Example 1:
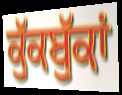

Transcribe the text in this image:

ਕੁੱਕਬੁੱਕਾਂ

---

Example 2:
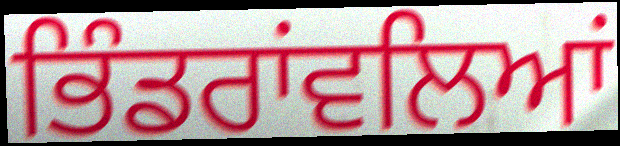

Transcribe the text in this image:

ਭਿੰਡਰਾਂਵਲਿਆਂ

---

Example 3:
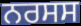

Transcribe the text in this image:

ਨਰਸਸ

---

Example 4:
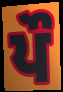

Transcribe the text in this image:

ਪੌ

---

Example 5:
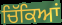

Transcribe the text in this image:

ਚਿੱਕਿਆਂ